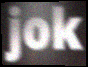
jok